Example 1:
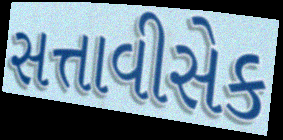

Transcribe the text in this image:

સત્તાવીસેક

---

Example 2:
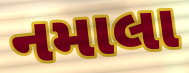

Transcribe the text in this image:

નમાલા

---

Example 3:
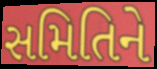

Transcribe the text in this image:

સમિતિને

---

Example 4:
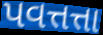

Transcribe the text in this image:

પવત્તત્તા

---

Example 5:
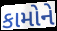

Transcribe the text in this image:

કામોને